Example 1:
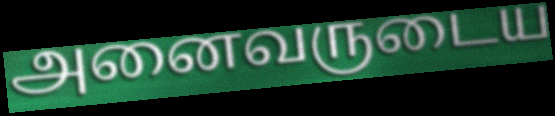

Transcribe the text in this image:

அனைவருடைய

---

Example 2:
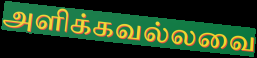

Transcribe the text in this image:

அளிக்கவல்லவை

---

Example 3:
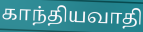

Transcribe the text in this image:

காந்தியவாதி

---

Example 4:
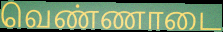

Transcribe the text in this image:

வெண்ணாடை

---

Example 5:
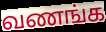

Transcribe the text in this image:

வணங்க